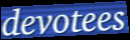
devotees